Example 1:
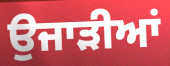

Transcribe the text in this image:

ਉਜਾੜੀਆਂ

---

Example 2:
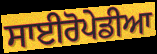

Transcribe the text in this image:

ਸਾਈਰੋਪੇਡੀਆ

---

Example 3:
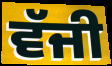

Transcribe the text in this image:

ਵੱਜੀ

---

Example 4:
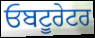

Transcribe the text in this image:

ਓਬਟੂਰੇਟਰ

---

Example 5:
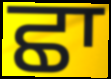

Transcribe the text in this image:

ਛਾ